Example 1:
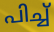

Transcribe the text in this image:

പിച്ച്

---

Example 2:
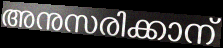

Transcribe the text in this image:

അനുസരിക്കാന്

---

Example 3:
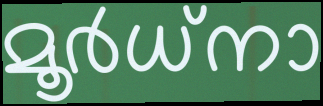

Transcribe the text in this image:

മൂർധ്നാ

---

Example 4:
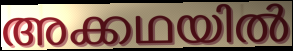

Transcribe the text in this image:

അക്കഥയിൽ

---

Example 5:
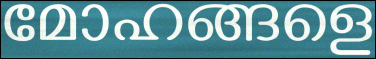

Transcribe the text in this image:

മോഹങ്ങളെ